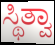
ಸ್ಥಿತ್ವಾ